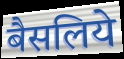
बैसलिये